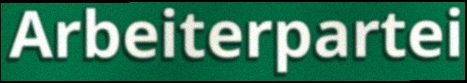
Arbeiterpartei